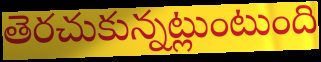
తెరచుకున్నట్లుంటుంది